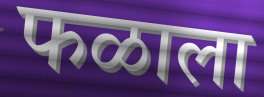
फळाला